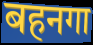
बहनगा